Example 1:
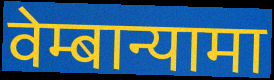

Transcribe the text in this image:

वेम्बान्यामा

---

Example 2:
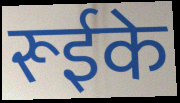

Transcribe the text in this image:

रूईके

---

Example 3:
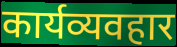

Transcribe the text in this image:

कार्यव्यवहार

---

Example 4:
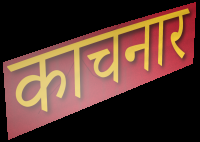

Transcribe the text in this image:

काचनार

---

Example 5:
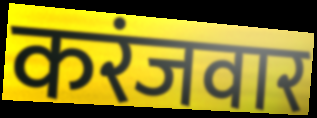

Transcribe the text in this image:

करंजवार